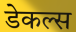
डेकल्स